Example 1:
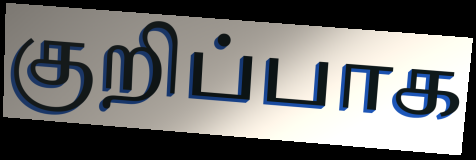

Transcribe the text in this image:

குறிப்பாக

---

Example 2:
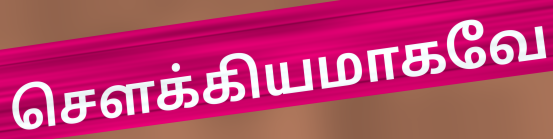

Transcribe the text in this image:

சௌக்கியமாகவே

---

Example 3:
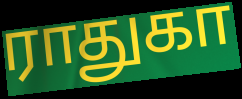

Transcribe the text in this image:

ராதுகா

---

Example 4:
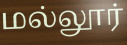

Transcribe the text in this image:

மல்லூர்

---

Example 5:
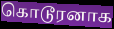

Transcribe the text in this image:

கொடூரனாக